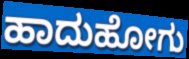
ಹಾದುಹೋಗು